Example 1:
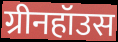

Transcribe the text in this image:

ग्रीनहॉउस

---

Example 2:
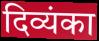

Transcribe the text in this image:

दिव्यंका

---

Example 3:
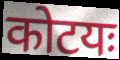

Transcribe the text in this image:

कोटयः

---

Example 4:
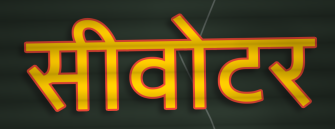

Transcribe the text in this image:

सीवोटर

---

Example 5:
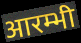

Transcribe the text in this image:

आरम्भी